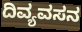
ದಿವ್ಯವಸನ